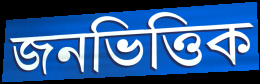
জনভিত্তিক